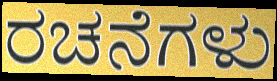
ರಚನೆಗಳು